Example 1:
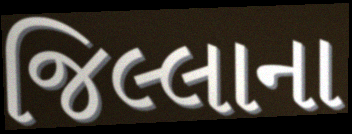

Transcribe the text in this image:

જિલ્લાના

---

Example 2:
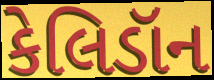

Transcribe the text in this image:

કેલિડૉન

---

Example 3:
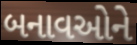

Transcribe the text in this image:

બનાવઓને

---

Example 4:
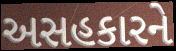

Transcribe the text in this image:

અસહકારને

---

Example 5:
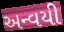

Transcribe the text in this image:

અન્વયી